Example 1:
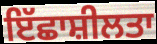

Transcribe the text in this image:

ਇੱਛਾਸ਼ੀਲਤਾ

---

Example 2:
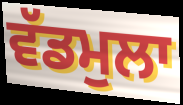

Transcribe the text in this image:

ਵੱਡਮੁਲਾ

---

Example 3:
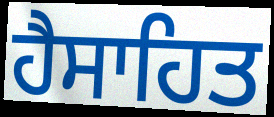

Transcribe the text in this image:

ਹੈਸਾਹਿਤ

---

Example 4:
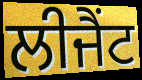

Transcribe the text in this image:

ਲੀਜੈਂਟ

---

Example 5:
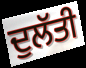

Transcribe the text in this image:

ਦੁਲੱਤੀ